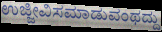
ಉಜ್ಜೀವಿಸಮಾಡುವಂಥದ್ದು